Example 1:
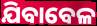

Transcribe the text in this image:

ଯିବାବେଳ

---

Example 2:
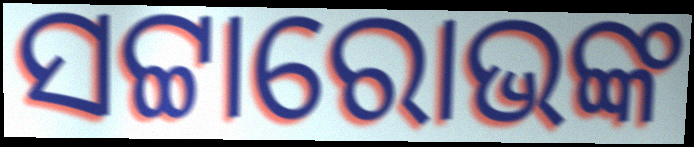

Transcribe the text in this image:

ସଟ୍ଟାରୋଭଙ୍କ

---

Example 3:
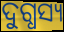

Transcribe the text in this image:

ଦୁଗ୍ଧସ୍ୟ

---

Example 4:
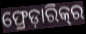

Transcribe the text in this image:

ଫ୍ରେଡ଼ାରିକ୍‍ର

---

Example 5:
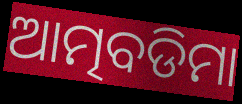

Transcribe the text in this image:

ଆତ୍ମବଡିମା